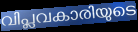
വിപ്ലവകാരിയുടെ